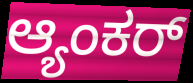
ಆ್ಯಂಕರ್